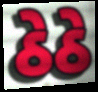
ઠેઠે